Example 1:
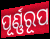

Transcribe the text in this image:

ପୂର୍ଣ୍ଣରୂପ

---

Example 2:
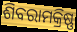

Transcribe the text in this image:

ଶିବରାମକ୍ରିଷ୍ଣ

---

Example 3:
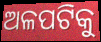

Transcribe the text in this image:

ଅଳପଟିକୁ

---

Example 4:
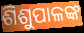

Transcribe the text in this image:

ଶିଶୁପାଳଙ୍କ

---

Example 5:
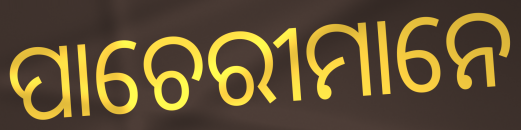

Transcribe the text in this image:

ପାଚେରୀମାନେ